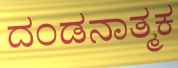
ದಂಡನಾತ್ಮಕ